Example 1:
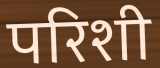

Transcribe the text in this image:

परिशी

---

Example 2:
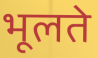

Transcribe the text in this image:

भूलते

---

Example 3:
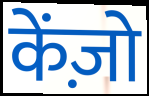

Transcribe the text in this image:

केंज़ो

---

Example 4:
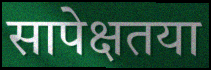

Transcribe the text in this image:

सापेक्षतया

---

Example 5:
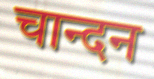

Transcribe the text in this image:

चान्दन